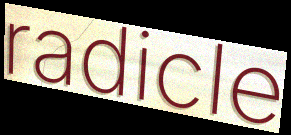
radicle